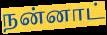
நன்னாட்